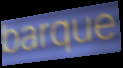
barque